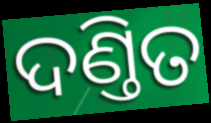
ଦଣ୍ତିତ